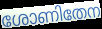
ശോണിതേന